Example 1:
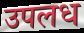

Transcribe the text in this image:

उपलध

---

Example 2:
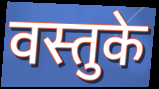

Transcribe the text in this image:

वस्तुके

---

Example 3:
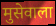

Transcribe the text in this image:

मुसेवाला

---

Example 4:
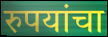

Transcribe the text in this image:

रुपयांचा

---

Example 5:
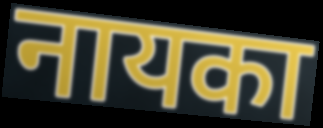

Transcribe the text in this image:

नायका